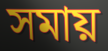
সমায়